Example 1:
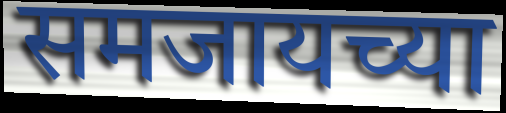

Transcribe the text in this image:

समजायच्या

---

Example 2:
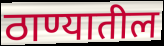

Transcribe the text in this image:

ठाण्यातील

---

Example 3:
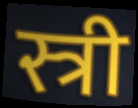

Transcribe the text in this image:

स्त्री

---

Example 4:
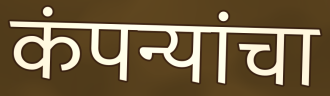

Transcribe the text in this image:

कंपन्यांचा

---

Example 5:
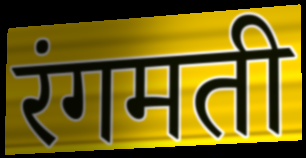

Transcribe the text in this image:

रंगमती